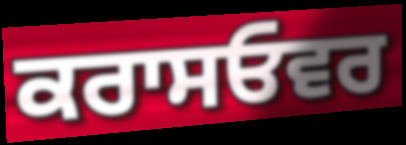
ਕਰਾਸਓਵਰ